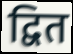
द्वित